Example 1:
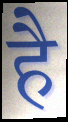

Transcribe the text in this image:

है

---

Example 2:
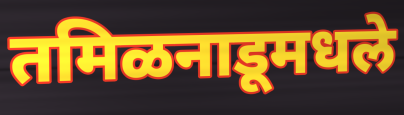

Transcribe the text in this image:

तमिळनाडूमधले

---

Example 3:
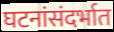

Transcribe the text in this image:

घटनांसंदर्भात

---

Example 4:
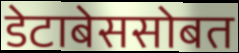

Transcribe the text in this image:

डेटाबेससोबत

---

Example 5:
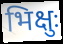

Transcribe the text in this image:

भिक्षुः